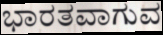
ಭಾರತವಾಗುವ